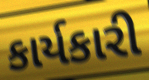
કાર્યકારી